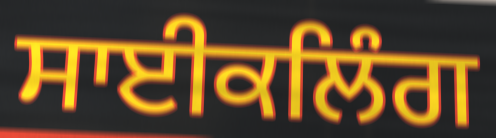
ਸਾਈਕਲਿੰਗ